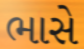
ભાસે